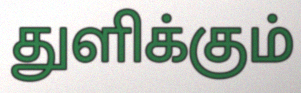
துளிக்கும்